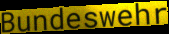
Bundeswehr